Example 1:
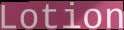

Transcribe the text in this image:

Lotion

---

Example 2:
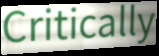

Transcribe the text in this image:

Critically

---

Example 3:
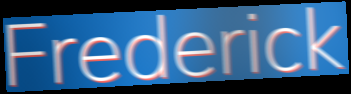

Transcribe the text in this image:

Frederick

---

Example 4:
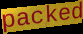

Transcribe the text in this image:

packed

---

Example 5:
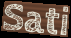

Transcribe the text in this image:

Sati